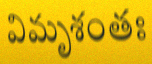
విమృశంతః